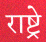
राष्ट्रे